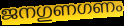
ജനഗുണഗണം